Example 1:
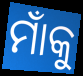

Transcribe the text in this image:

ମାଁକୁ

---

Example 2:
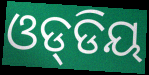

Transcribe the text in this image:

ଓଡ୍‌ଡିୟ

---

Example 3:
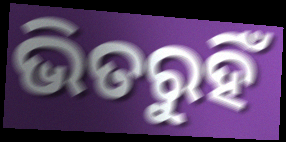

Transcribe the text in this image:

ଭିତରୁହିଁ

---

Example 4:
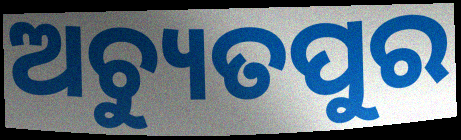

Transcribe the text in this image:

ଅଚ୍ୟୁତପୁର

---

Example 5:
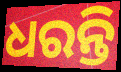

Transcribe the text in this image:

ଧରନ୍ତି